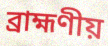
ব্রাহ্মণীয়